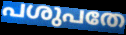
പശുപതേ